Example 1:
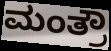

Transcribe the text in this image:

ಮಂತ್ರೌ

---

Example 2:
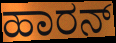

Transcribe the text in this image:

ಹಾರನ್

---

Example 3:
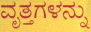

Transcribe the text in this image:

ವೃತ್ತಗಳನ್ನು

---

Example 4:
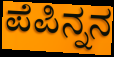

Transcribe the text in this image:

ಪೆಪಿನ್ನನ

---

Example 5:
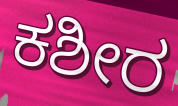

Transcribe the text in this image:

ಕಶೀರ